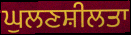
ਘੁਲਣਸ਼ੀਲਤਾ